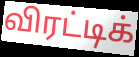
விரட்டிக்